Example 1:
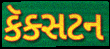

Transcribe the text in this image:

કૅક્સટન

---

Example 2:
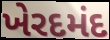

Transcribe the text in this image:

ખેરદમંદ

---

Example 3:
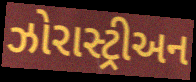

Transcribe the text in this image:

ઝોરાસ્ટ્રીઅન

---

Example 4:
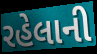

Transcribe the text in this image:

રહેલાની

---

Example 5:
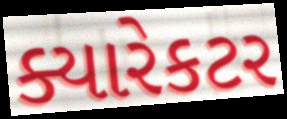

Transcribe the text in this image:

ક્યારેકટર